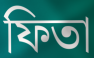
ফিতা